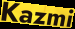
Kazmi